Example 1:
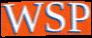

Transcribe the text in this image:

WSP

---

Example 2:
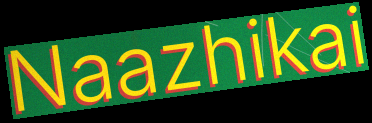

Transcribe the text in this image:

Naazhikai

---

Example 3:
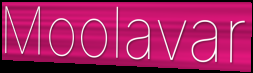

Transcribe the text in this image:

Moolavar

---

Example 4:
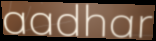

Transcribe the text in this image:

aadhar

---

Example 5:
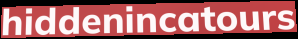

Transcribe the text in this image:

hiddenincatours